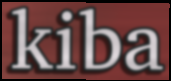
kiba